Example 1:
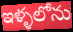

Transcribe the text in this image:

ఇళ్ళలోను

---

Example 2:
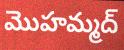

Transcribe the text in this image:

మొహమ్మద్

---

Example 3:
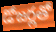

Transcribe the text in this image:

డోజర్లతో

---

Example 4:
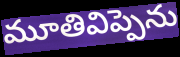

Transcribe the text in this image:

మూతివిప్పెను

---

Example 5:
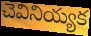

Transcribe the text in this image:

చెవినియ్యక